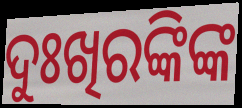
ଦୁଃଖିରଙ୍କିଙ୍କ